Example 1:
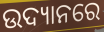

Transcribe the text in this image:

ଉଦ୍ୟାନରେ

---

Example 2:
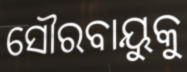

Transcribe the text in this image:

ସୌରବାୟୁକୁ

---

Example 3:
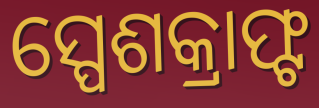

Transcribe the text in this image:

ସ୍ପେଶକ୍ରାଫ୍ଟ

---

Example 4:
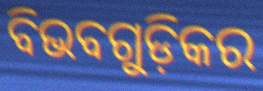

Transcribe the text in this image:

ବିଭବଗୁଡ଼ିକର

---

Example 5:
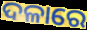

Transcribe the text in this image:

ଦଳାରେ